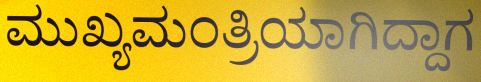
ಮುಖ್ಯಮಂತ್ರಿಯಾಗಿದ್ದಾಗ